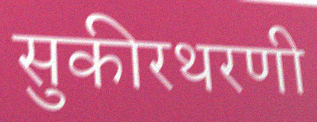
सुकीरथरणी